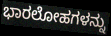
ಭಾರಲೋಹಗಳನ್ನು